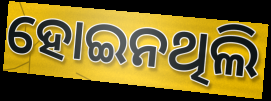
ହୋଇନଥିଲି